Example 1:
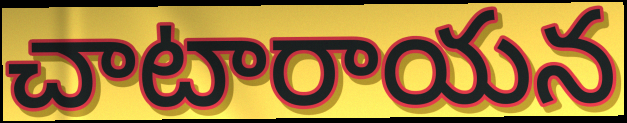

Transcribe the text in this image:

చాటారాయన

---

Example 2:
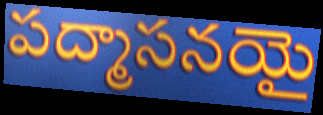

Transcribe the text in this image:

పద్మాసనయై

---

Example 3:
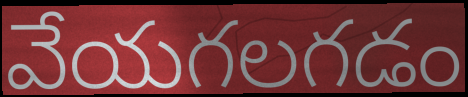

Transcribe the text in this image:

వేయగలగడం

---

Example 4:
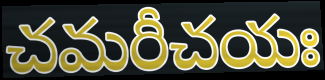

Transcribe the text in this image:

చమరీచయః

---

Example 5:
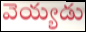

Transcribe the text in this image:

వెయ్యడు